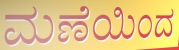
ಮಣೆಯಿಂದ